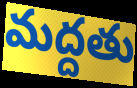
మద్దతు